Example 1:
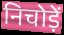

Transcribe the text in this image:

निचोड़ें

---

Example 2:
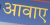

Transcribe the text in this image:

आवाए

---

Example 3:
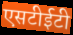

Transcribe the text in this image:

एसटीईटी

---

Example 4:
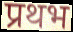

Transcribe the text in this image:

प्रथभ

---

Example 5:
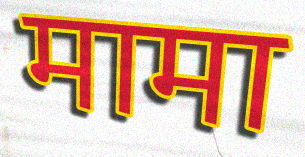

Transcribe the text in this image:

मामा